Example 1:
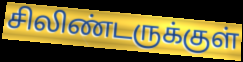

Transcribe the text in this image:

சிலிண்டருக்குள்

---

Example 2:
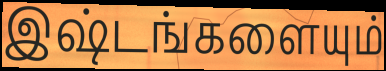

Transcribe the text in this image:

இஷ்டங்களையும்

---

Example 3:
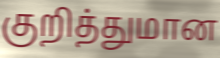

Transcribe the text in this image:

குறித்துமான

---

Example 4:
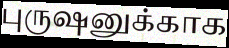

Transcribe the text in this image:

புருஷனுக்காக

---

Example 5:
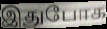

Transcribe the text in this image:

இதுபோக